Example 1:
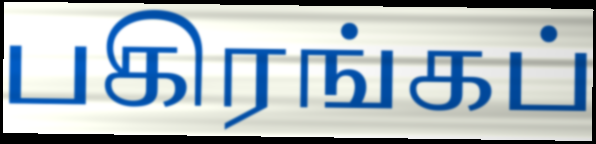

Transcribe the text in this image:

பகிரங்கப்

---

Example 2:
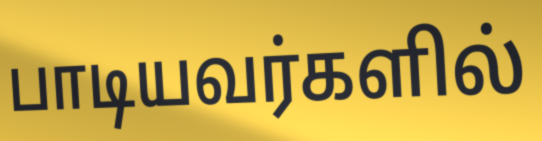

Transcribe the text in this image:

பாடியவர்களில்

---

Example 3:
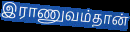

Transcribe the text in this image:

இராணுவம்தான்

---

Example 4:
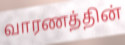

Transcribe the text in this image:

வாரணத்தின்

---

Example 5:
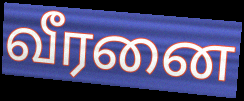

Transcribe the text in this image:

வீரனை